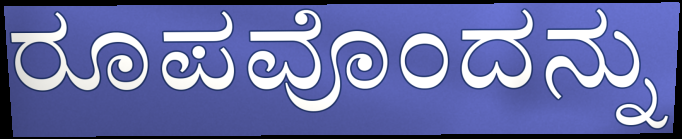
ರೂಪವೊಂದನ್ನು